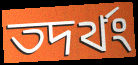
তদর্থং